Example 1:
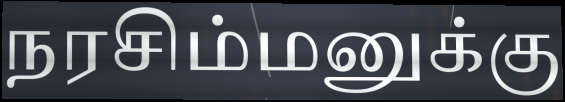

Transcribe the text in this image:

நரசிம்மனுக்கு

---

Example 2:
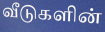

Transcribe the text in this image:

வீடுகளின்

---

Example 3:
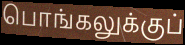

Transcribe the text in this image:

பொங்கலுக்குப்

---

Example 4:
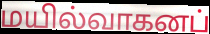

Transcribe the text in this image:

மயில்வாகனப்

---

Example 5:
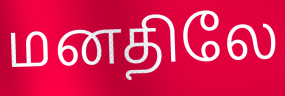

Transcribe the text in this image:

மனதிலே